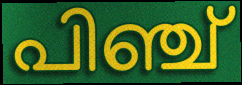
പിഞ്ച്